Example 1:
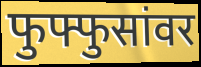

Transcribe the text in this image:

फुफ्फुसांवर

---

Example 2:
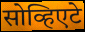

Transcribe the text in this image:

सोव्हिएटे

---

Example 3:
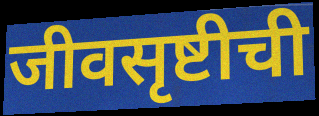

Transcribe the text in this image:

जीवसृष्टीची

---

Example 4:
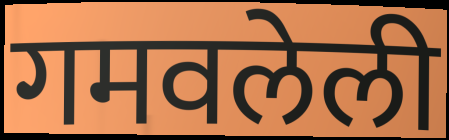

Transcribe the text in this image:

गमवलेली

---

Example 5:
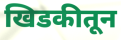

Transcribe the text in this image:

खिडकीतून